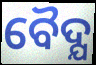
ବୈଦ୍ଯ